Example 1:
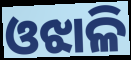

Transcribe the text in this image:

ଓଝାଳି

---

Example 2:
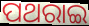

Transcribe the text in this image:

ପଥରାଇ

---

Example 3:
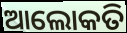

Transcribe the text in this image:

ଆଲୋକତି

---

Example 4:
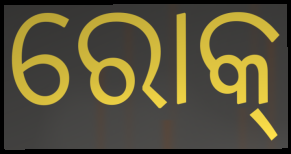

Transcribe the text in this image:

ରୋକ୍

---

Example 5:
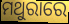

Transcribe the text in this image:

ମଥୁରାରେ